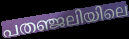
പതഞ്ജലിയിലെ